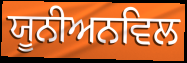
ਯੂਨੀਅਨਵਿਲ